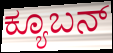
ಕ್ಯೂಬನ್